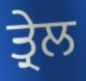
ਤ੍ਰੇਲ